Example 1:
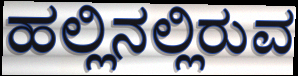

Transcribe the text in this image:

ಹಲ್ಲಿನಲ್ಲಿರುವ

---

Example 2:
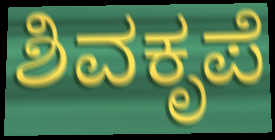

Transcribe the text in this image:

ಶಿವಕೃಪೆ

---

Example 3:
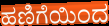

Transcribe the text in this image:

ಹಣಿಗೆಯಿಂದ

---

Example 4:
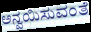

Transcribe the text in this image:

ಅನ್ವಯಿಸುವಂತೆ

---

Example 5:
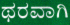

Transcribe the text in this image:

ಥರವಾಗಿ